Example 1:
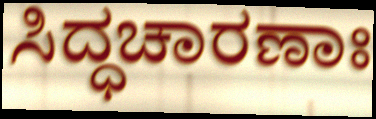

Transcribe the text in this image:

ಸಿದ್ಧಚಾರಣಾಃ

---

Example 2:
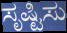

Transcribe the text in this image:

ಸೃಷ್ಟಿಸು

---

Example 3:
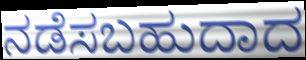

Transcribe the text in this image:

ನಡೆಸಬಹುದಾದ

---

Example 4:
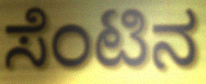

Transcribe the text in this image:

ಸೆಂಟಿನ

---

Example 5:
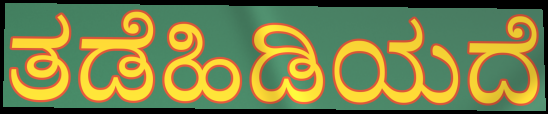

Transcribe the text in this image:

ತಡೆಹಿಡಿಯದೆ